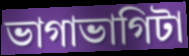
ভাগাভাগিটা